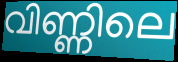
വിണ്ണിലെ